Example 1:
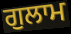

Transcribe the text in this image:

ਗੁਲਾਮ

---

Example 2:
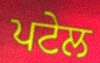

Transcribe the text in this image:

ਪਟੇਲ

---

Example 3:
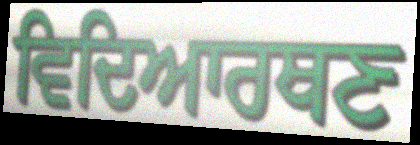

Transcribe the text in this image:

ਵਿਦਿਆਰਥਣ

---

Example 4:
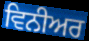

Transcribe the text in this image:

ਵਿਨੀਅਰ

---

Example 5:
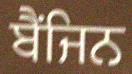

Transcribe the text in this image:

ਬੈਂਜਿਨ